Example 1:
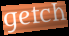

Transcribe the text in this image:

getch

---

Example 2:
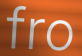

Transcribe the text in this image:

fro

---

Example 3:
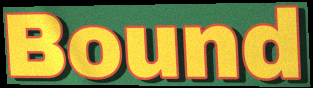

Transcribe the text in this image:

Bound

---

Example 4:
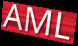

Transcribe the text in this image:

AML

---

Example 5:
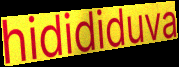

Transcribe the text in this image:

hidididuva